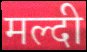
मल्दी